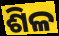
ଶିଳ